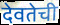
देवतेची